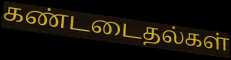
கண்டடைதல்கள்